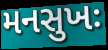
મનસુખઃ